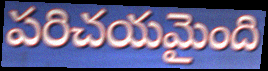
పరిచయమైంది